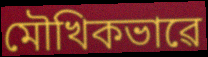
মৌখিকভাৱে